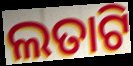
ଲତାଟି